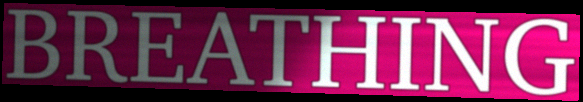
BREATHING